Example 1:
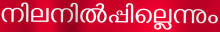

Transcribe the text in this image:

നിലനിൽപ്പില്ലെന്നും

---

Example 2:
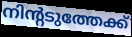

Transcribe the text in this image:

നിന്റടുത്തേക്ക്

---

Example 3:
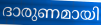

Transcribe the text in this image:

ദാരുണമായി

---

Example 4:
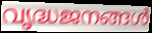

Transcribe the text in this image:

വൃദ്ധജനങ്ങൾ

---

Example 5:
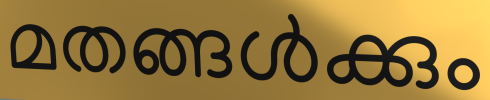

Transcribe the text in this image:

മതങ്ങൾക്കും